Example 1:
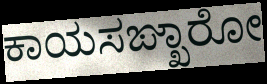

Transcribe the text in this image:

ಕಾಯಸಙ್ಖಾರೋ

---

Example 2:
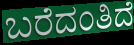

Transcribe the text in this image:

ಬರೆದಂತಿದೆ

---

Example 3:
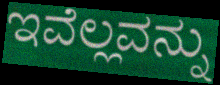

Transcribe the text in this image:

ಇವೆಲ್ಲವನ್ನು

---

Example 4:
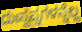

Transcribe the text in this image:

ದುಃಸ್ವಪ್ನಗಳನ್ನೆಲ್ಲ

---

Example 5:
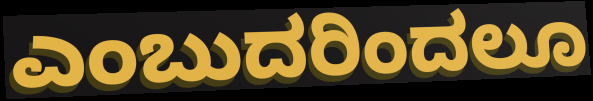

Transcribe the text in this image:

ಎಂಬುದರಿಂದಲೂ